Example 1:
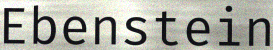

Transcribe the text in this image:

Ebenstein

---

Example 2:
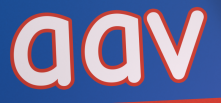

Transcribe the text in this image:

aav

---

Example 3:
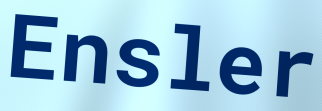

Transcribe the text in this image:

Ensler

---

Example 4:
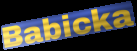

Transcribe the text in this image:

Babicka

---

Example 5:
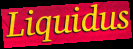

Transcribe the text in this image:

Liquidus